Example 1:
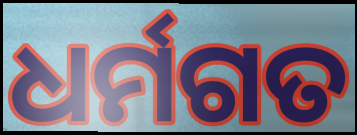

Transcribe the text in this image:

ଧର୍ମଗତ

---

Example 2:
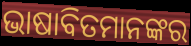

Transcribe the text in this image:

ଭାଷାବିତମାନଙ୍କର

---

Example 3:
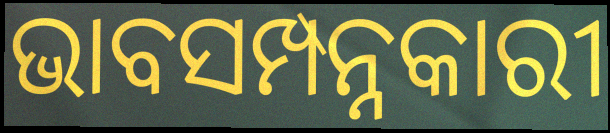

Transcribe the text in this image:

ଭାବସମ୍ପନ୍ନକାରୀ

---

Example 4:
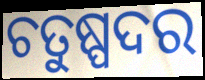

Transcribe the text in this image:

ଚତୁଷ୍ପଦର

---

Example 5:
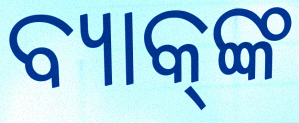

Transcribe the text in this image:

ବ୍ୟାକ୍‍ଙ୍କ